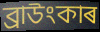
ব্ৰাউংকাৰ